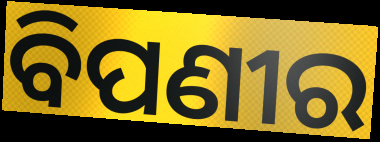
ବିପଣୀର